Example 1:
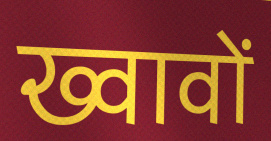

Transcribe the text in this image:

ख्वावों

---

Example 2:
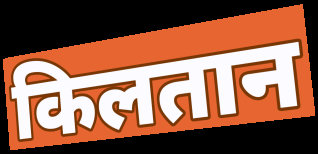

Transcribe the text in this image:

किलतान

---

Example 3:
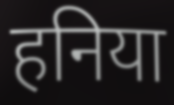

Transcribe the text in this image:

हनिया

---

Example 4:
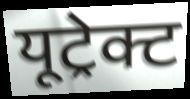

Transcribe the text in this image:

यूट्रेक्ट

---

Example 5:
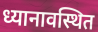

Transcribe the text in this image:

ध्यानावस्थित